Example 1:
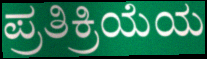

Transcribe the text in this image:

ಪ್ರತಿಕ್ರಿಯೆಯ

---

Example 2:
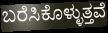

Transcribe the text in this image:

ಬರೆಸಿಕೊಳ್ಳುತ್ತವೆ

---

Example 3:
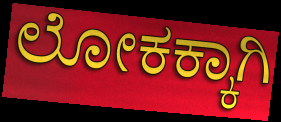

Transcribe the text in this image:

ಲೋಕಕ್ಕಾಗಿ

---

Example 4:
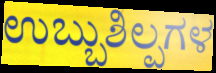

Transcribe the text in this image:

ಉಬ್ಬುಶಿಲ್ಪಗಳ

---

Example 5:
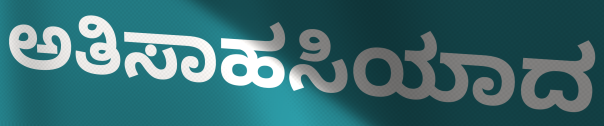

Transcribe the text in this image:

ಅತಿಸಾಹಸಿಯಾದ